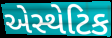
એસ્થેટિક